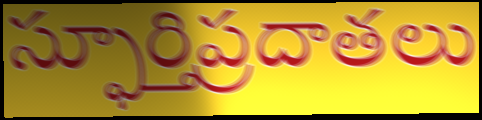
స్ఫూర్తిప్రదాతలు